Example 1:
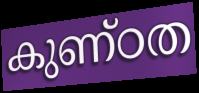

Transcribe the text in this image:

കുണ്ഠത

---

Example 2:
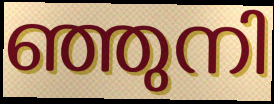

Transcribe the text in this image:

ഞ്ഞുനി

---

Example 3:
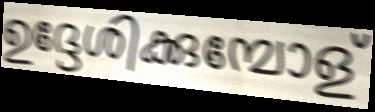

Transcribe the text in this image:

ഉദ്ദേശിക്കുമ്പോള്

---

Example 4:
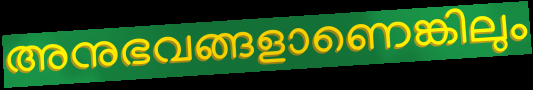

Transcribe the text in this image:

അനുഭവങ്ങളാണെങ്കിലും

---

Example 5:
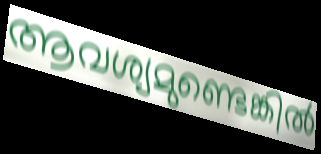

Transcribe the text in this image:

ആവശ്യമുണ്ടെങ്കിൽ